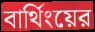
বার্থিংয়ের